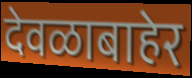
देवळाबाहेर